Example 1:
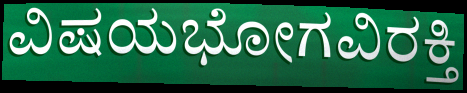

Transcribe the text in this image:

ವಿಷಯಭೋಗವಿರಕ್ತಿ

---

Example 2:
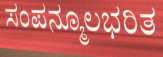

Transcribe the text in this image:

ಸಂಪನ್ಮೂಲಭರಿತ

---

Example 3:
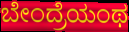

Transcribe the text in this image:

ಬೇಂದ್ರೆಯಂಥ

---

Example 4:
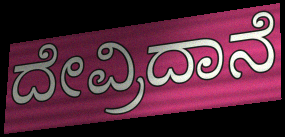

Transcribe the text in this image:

ದೇವ್ರಿದಾನೆ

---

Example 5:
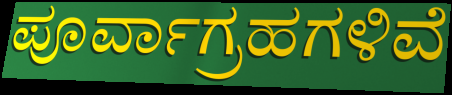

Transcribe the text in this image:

ಪೂರ್ವಾಗ್ರಹಗಳಿವೆ